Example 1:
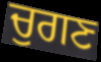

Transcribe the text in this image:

ਚੁਗਣ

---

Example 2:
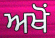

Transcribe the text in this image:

ਅਖੋਂ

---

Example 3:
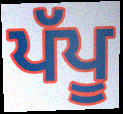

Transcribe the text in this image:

ਪੱਪੂ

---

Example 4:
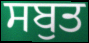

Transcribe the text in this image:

ਸਬੁਤ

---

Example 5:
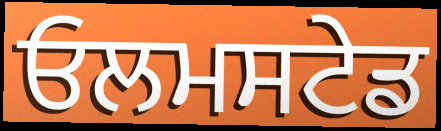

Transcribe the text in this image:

ਓਲਮਸਟੇਡ